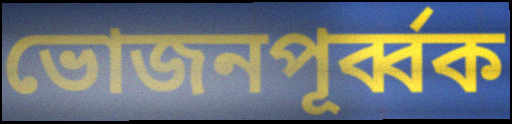
ভোজনপূর্ব্বক